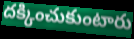
దక్కించుకుంటారు